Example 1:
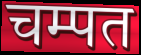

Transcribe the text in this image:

चम्पत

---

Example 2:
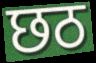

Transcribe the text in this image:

छठ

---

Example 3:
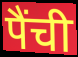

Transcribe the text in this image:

पैंची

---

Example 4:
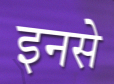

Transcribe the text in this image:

इनसे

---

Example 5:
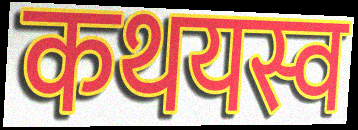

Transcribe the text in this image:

कथयस्व